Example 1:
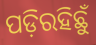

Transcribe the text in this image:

ପଡ଼ିରହିଛୁଁ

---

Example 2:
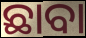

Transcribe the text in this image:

ଛାବା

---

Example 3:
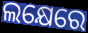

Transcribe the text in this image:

ଲକ୍ଷେରେ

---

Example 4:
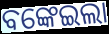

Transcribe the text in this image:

ବଙ୍କେଇଲା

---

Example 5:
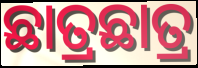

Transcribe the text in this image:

ଛାତ୍ରଛାତ୍ର